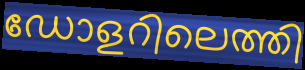
ഡോളറിലെത്തി